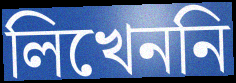
লিখেননি